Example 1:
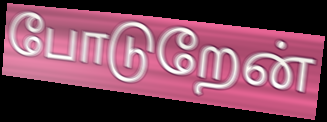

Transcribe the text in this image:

போடுறேன்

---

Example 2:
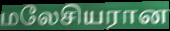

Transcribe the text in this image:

மலேசியரான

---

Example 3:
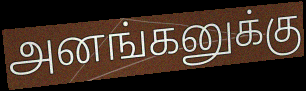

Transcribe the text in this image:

அனங்கனுக்கு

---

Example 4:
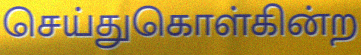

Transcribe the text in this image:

செய்துகொள்கின்ற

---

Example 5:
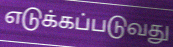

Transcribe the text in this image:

எடுக்கப்படுவது